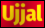
Ujjal